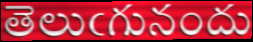
తెలుఁగునందు